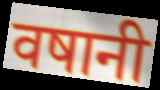
वषानी